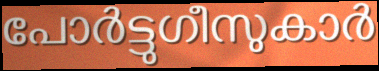
പോർട്ടുഗീസുകാർ